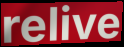
relive